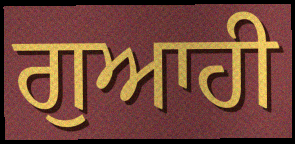
ਗੁਆਹੀ